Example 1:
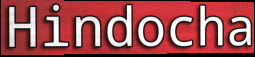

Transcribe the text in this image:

Hindocha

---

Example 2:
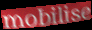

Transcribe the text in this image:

mobilise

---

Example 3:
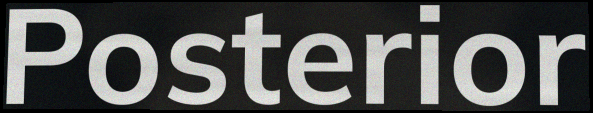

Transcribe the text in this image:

Posterior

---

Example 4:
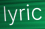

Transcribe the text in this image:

lyric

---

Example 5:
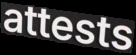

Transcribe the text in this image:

attests